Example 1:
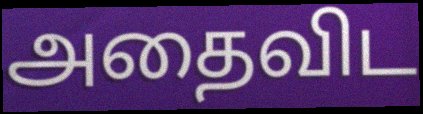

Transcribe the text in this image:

அதைவிட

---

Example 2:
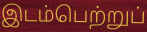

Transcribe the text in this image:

இடம்பெற்றுப்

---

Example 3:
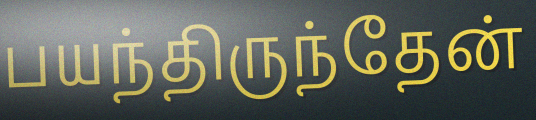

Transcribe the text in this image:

பயந்திருந்தேன்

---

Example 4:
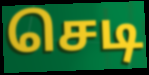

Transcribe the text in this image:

செடி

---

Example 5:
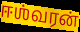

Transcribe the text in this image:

ஈஶ்வரன்